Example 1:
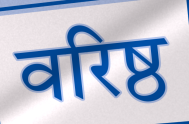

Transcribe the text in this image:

वरिष्ठ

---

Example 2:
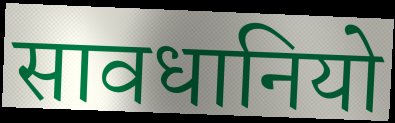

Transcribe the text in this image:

सावधानियो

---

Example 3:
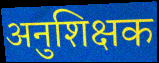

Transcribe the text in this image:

अनुशिक्षक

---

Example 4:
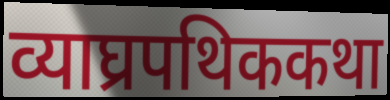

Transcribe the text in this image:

व्याघ्रपथिककथा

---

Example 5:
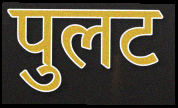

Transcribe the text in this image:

पुलट